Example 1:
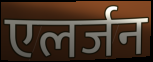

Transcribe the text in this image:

एलर्जन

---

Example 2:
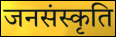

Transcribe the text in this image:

जनसंस्कृति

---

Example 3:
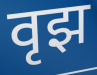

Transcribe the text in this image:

वृझ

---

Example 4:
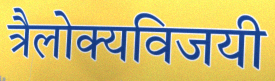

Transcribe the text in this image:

त्रैलोक्यविजयी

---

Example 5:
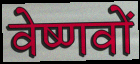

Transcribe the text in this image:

वेष्णवों